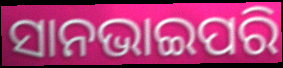
ସାନଭାଇପରି